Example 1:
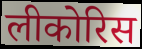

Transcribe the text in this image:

लीकोरिस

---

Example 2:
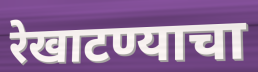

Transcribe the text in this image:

रेखाटण्याचा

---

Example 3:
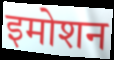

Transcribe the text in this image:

इमोशन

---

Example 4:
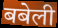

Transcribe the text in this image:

बबेली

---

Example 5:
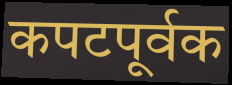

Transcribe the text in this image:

कपटपूर्वक